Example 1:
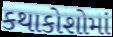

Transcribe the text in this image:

કથાકોશોમાં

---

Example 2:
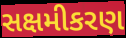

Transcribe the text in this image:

સક્ષમીકરણ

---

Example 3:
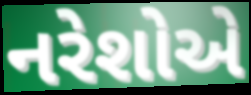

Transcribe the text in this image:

નરેશોએ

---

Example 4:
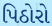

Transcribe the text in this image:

પિઠોરો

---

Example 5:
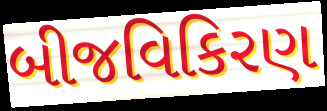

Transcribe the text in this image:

બીજવિકિરણ